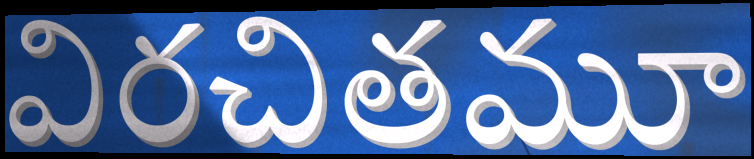
విరచితమూ